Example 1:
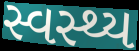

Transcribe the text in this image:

સ્વસ્થ્ય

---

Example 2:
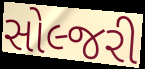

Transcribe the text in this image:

સોલ્જરી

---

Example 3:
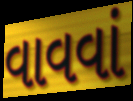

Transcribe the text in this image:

વાવવાં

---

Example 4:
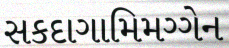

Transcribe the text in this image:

સકદાગામિમગ્ગેન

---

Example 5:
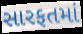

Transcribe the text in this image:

સારફતમાં